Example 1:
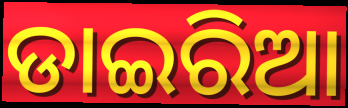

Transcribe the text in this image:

ଡାଇରିଆ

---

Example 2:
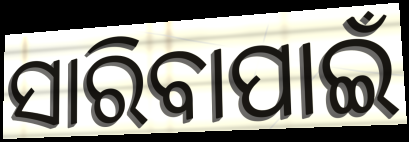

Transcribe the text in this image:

ସାରିବାପାଇଁ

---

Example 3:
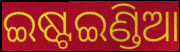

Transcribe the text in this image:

ଇଷ୍ଟଇଣ୍ଡିଆ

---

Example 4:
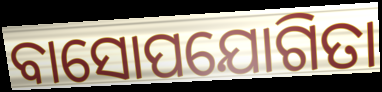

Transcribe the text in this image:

ବାସୋପଯୋଗିତା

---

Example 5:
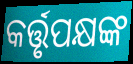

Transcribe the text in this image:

କର୍ତ୍ତୃପକ୍ଷଙ୍କ